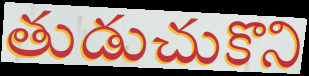
తుడుచుకొని